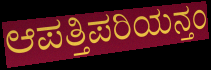
ಆಪತ್ತಿಪರಿಯನ್ತಂ